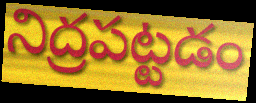
నిద్రపట్టడం